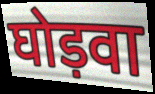
घोड़वा